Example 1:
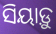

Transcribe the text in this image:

ସିୟାଡ଼ୁ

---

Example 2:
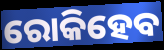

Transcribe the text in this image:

ରୋକିହେବ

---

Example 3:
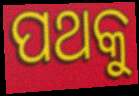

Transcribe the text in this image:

ପଥକୁ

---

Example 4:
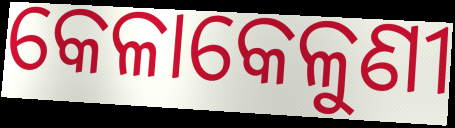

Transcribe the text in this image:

କେଳାକେଳୁଣୀ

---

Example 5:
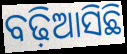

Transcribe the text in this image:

ବଢ଼ିଆସିଛି